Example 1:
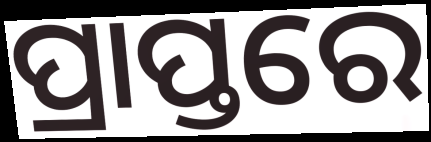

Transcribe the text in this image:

ପ୍ରାପ୍ତରେ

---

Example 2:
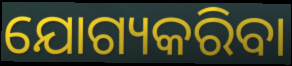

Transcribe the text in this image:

ଯୋଗ୍ୟକରିବା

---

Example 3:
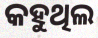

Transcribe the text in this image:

କହୁଥିଲ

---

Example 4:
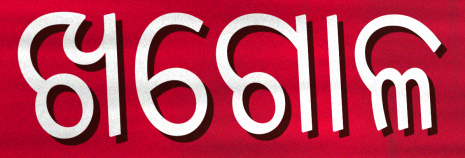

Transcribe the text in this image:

ଖଗୋଳ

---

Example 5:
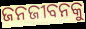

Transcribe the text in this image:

ଜନଜୀବନକୁ